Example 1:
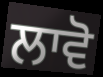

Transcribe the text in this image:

ਲਾਵੋ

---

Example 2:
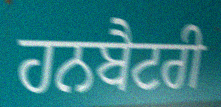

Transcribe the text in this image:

ਹਨਬੈਟਰੀ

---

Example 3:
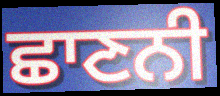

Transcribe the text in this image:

ਛਾਣਨੀ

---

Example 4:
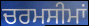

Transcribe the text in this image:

ਚਰਮਸੀਮਾਂ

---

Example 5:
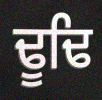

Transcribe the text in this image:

ਢੂਢਿ